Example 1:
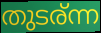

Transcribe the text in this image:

തുടര്ന്ന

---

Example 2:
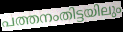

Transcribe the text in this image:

പത്തനംതിട്ടയിലും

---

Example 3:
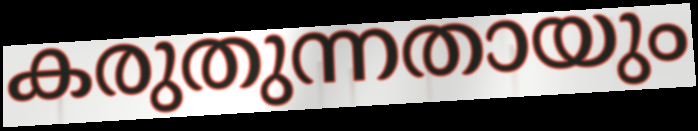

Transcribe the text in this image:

കരുതുന്നതായും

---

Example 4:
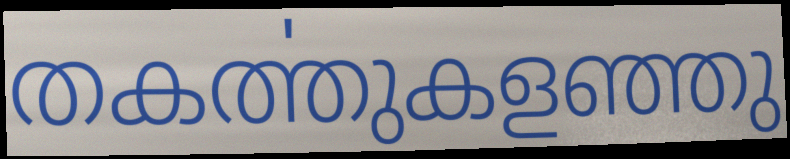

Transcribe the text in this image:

തകൎത്തുകളഞ്ഞു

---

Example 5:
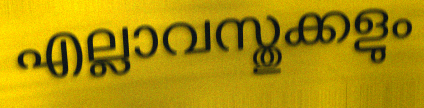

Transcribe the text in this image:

എല്ലാവസ്തുക്കളും